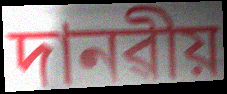
দানৱীয়